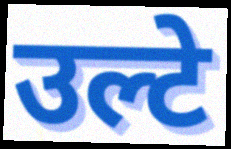
उल्टे